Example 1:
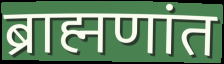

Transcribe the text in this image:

ब्राह्मणांत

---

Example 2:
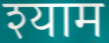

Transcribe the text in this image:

श्याम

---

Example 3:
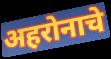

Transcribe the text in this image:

अहरोनाचे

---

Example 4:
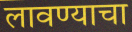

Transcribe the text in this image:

लावण्याचा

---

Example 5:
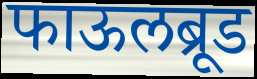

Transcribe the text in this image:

फाऊलब्रूड